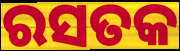
ରସତକ